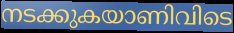
നടക്കുകയാണിവിടെ